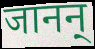
जानन्